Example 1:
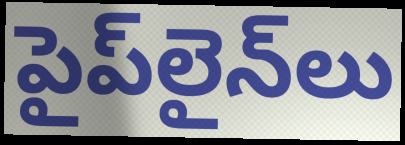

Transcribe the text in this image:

పైప్‌లైన్‌లు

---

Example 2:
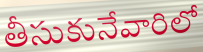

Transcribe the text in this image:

తీసుకునేవారిలో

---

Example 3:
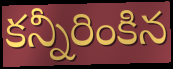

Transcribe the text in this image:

కన్నీరింకిన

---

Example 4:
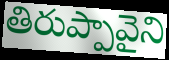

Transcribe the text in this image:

తిరుప్పావైని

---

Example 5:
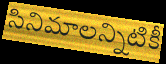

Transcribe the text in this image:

సినిమాలన్నిటికీ